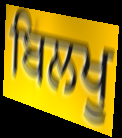
ਬਿਲਖੂ